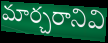
మార్చరానివి